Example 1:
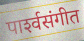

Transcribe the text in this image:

पार्श्‍वसंगीत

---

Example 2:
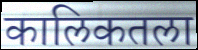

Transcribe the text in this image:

कालिकतला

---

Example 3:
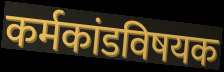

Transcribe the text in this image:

कर्मकांडविषयक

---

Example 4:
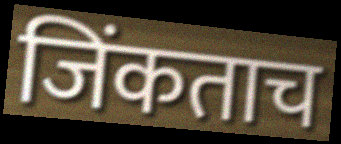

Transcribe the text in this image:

जिंकताच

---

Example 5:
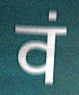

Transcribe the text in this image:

वं